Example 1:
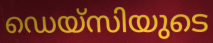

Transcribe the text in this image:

ഡെയ്സിയുടെ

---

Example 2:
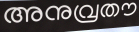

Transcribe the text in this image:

അനുവ്രതൗ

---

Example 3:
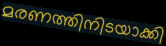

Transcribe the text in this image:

മരണത്തിനിടയാക്കി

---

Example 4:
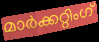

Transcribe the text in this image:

മാർക്കറ്റിംഗ്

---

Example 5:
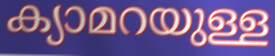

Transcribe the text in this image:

ക്യാമറയുള്ള